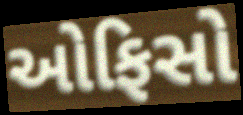
ઓફિસો